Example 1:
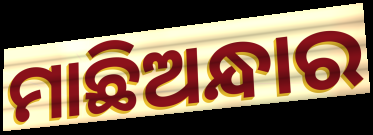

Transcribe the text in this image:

ମାଛିଅନ୍ଧାର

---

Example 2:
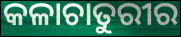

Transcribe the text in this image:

କଳାଚାତୁରୀର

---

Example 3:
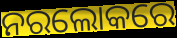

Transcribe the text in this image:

ନରଲୋକରେ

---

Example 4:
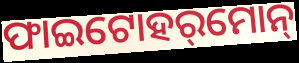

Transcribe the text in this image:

ଫାଇଟୋହର୍‌ମୋନ୍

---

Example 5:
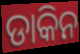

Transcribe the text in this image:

ଡାକିନ